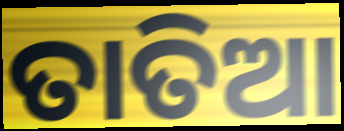
ତାତିଆ